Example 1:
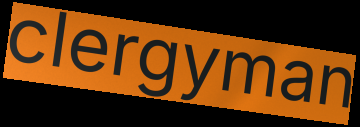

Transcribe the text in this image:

clergyman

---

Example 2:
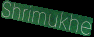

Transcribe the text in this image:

Shrimukhe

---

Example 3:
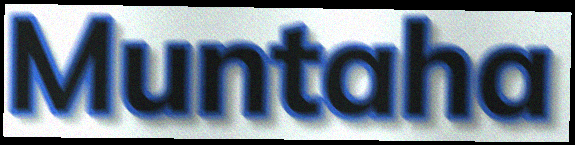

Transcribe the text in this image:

Muntaha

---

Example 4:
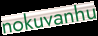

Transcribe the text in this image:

nokuvanhu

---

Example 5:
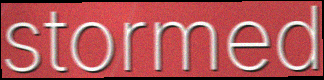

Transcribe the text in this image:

stormed